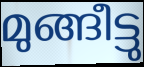
മുങ്ങീട്ടു